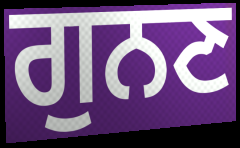
ਗੁਨਣ